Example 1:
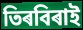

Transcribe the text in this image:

তিৰবিৰাই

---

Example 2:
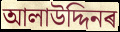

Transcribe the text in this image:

আলাউদ্দিনৰ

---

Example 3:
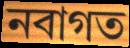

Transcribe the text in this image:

নবাগত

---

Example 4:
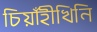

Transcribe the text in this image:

চিয়াঁহীখিনি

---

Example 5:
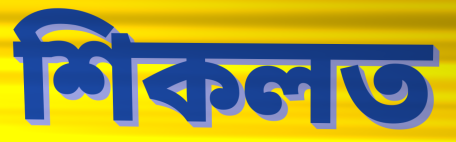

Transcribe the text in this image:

শিকলত